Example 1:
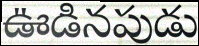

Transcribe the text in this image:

ఊడినపుడు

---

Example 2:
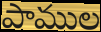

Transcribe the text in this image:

పాముల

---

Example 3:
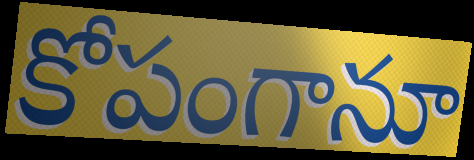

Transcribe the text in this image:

కోపంగానూ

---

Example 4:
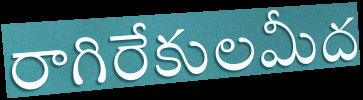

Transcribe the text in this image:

రాగిరేకులమీద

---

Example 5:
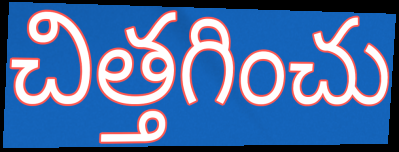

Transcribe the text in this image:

చిత్తగించు